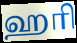
ஹரி